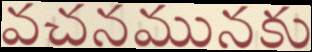
వచనమునకు